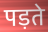
पड़ते